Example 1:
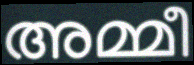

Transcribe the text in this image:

അമ്മീ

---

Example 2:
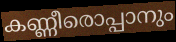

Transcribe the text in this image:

കണ്ണീരൊപ്പാനും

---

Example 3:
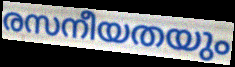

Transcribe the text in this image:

രസനീയതയും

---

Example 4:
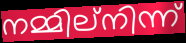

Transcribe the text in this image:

നമ്മില്നിന്ന്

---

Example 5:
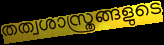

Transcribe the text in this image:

തത്വശാസ്ത്രങ്ങളുടെ